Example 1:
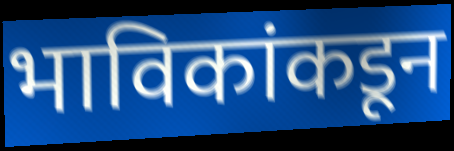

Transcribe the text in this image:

भाविकांकडून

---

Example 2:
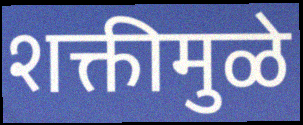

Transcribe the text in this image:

शक्तीमुळे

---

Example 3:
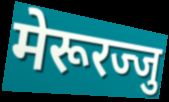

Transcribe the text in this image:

मेरूरज्जु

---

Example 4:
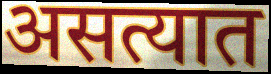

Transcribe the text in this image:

असत्यात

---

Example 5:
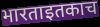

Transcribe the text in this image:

भारताइतकाच